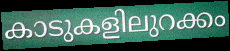
കാടുകളിലുറക്കം